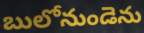
బులోనుండెను